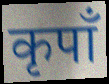
कृपाँ